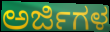
ಅರ್ಜಿಗಳ